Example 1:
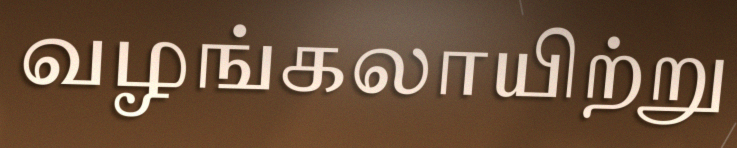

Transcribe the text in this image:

வழங்கலாயிற்று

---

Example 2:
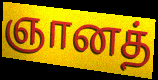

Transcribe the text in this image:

ஞானத்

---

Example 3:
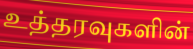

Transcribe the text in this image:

உத்தரவுகளின்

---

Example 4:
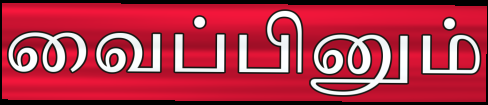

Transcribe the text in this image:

வைப்பினும்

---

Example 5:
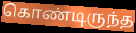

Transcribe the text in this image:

கொண்டிருந்த